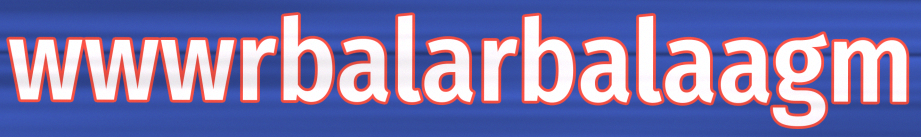
wwwrbalarbalaagm